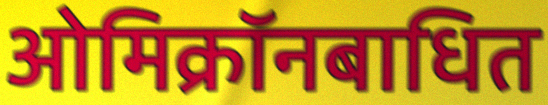
ओमिक्रॉनबाधित